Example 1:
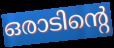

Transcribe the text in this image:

ഒരാടിന്റെ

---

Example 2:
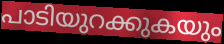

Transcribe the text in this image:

പാടിയുറക്കുകയും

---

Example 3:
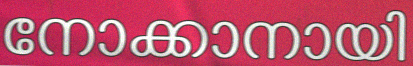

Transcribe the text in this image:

നോക്കാനായി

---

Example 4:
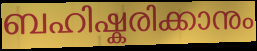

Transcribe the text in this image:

ബഹിഷ്കരിക്കാനും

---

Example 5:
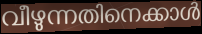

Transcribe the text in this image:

വീഴുന്നതിനെക്കാൾ